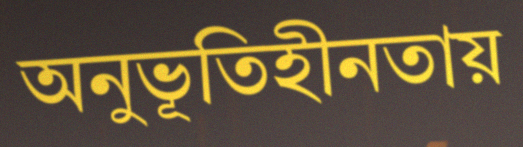
অনুভূতিহীনতায়